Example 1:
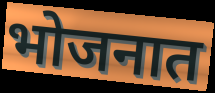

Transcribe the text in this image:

भोजनात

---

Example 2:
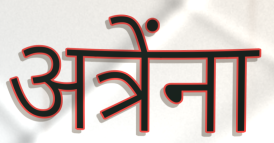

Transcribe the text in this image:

अत्रेंना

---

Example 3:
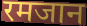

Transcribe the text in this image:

रमजान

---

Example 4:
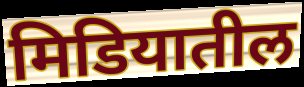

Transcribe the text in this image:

मिडियातील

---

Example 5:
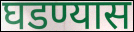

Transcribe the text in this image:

घडण्यास